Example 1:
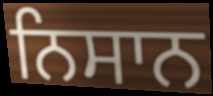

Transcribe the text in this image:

ਨਿਸਾਨ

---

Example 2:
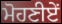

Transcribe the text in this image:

ਮੋਹਣੀਏਂ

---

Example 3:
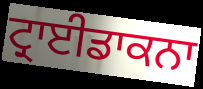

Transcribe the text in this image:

ਟ੍ਰਾਈਡਾਕਨਾ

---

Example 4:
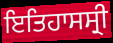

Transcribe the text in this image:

ਇਤਿਹਾਸਸ੍ਰੀ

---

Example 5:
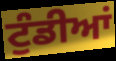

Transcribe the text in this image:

ਟੁੰਡੀਆਂ